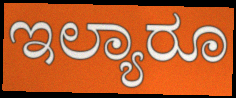
ಇಲ್ಯಾರೂ